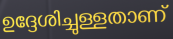
ഉദ്ദേശിച്ചുള്ളതാണ്